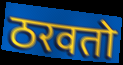
ठरवतो